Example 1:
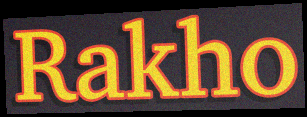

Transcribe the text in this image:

Rakho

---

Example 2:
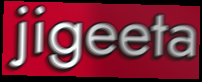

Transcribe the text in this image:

jigeeta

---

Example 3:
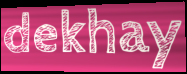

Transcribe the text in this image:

dekhay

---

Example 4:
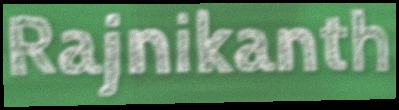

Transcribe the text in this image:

Rajnikanth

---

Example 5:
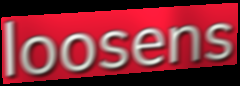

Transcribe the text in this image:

loosens